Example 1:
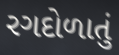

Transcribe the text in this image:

રગદોળાતું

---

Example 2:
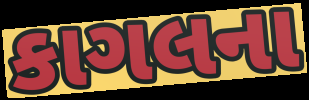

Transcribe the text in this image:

કાગલના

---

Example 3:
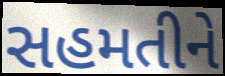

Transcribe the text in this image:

સહમતીને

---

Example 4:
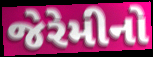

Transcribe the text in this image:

જેરેમીનો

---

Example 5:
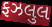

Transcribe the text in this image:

ફઝલુલ